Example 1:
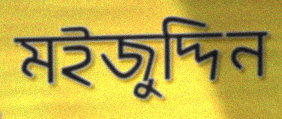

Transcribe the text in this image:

মইজুদ্দিন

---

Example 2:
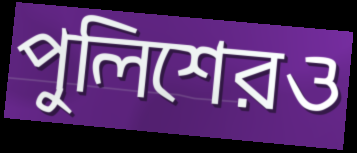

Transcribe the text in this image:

পুলিশেরও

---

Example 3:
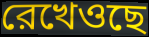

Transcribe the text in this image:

রেখেওছে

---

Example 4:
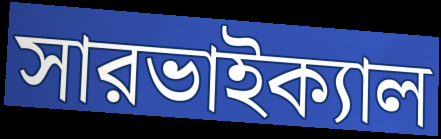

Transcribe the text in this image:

সারভাইক্যাল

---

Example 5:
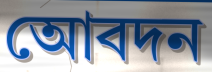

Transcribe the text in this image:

আেবদন